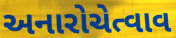
અનારોચેત્વાવ